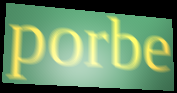
porbe